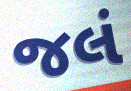
જલં